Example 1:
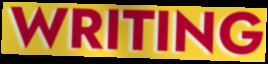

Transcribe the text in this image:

WRITING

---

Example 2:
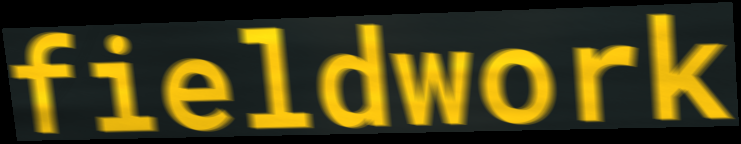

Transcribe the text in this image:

fieldwork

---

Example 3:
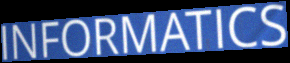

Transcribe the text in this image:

INFORMATICS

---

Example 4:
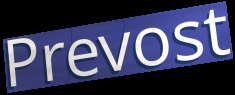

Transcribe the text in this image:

Prevost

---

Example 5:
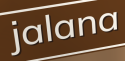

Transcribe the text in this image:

jalana